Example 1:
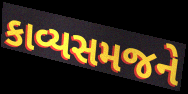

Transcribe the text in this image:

કાવ્યસમજને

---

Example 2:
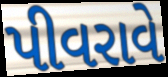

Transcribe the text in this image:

પીવરાવે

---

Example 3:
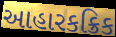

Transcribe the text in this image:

આહારકક્રિક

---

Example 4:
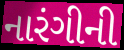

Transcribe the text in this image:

નારંગીની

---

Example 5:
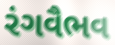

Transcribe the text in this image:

રંગવૈભવ